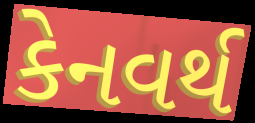
કેનવર્થ